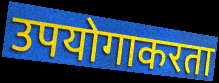
उपयोगाकरता